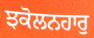
ਝਕੋਲਨਹਾਰੁ